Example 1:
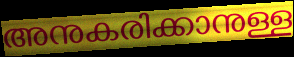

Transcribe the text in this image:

അനുകരിക്കാനുള്ള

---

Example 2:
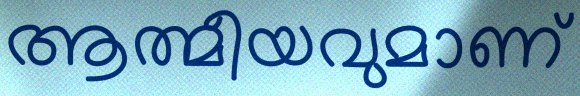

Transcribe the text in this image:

ആത്മീയവുമാണ്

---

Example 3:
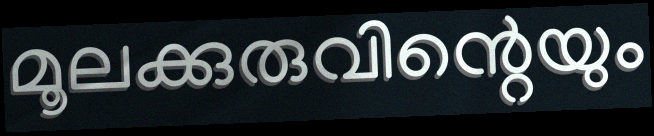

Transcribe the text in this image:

മൂലക്കുരുവിന്റെയും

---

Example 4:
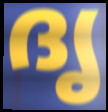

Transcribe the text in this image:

ദൃ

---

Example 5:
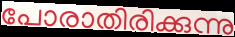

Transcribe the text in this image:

പോരാതിരിക്കുന്നു